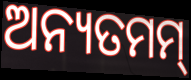
ଅନ୍ୟତମମ୍